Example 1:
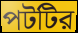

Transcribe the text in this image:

পটটির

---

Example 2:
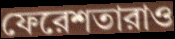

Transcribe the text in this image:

ফেরেশতারাও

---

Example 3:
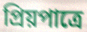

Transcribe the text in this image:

প্রিয়পাত্রে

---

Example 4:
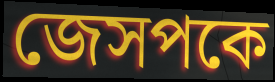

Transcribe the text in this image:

জেসপকে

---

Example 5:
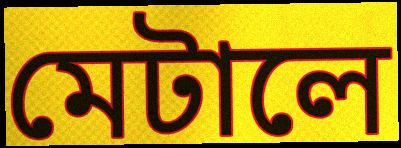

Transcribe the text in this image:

মেটালে